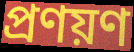
প্ৰণয়ণ